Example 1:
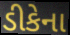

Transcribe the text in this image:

ડીકેના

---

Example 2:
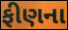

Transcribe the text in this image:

ફીણના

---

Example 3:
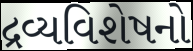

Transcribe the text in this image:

દ્રવ્યવિશેષનો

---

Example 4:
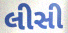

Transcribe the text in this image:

લીસી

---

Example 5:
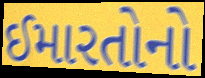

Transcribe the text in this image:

ઈમારતોનો